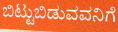
ಬಿಟ್ಟುಬಿಡುವವನಿಗೆ